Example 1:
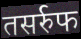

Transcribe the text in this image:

तसर्रुफ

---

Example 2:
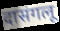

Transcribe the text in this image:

दासंगलू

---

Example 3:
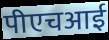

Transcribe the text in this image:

पीएचआई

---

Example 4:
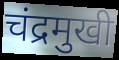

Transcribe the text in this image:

चंद्रमुखी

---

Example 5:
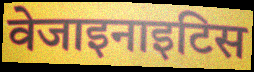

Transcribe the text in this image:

वेजाइनाइटिस